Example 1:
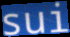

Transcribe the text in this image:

sui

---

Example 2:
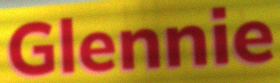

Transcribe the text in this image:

Glennie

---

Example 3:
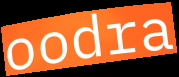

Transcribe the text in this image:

oodra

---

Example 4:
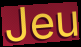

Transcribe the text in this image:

Jeu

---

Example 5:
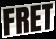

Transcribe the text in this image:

FRET